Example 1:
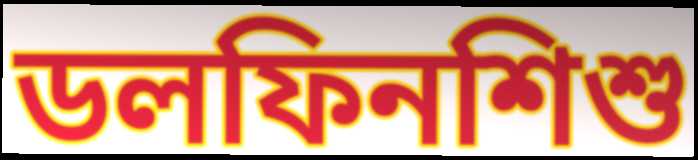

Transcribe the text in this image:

ডলফিনশিশু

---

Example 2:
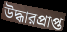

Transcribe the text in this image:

উদ্ধারপ্রাপ্ত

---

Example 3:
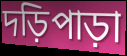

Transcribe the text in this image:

দড়িপাড়া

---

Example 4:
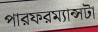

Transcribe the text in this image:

পারফরম্যান্সটা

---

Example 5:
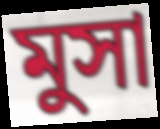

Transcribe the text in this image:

মুসা